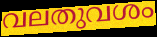
വലതുവശം